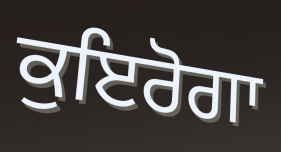
ਕੁਇਰੋਗਾ